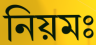
নিয়মঃ